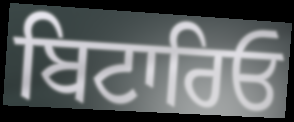
ਬਿਟਾਰਿਓ